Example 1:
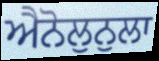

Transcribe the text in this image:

ਐਨੋਲੁਨੁਲਾ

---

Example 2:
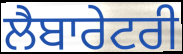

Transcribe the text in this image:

ਲੈਬਾਰੇਟਰੀ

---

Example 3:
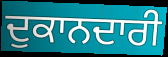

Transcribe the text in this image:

ਦੁਕਾਨਦਾਰੀ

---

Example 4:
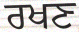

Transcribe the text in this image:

ਰਖਣ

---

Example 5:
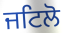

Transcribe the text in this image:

ਜਟਿਲੋ